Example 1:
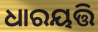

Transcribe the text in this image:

ଧାରୟତ୍ତି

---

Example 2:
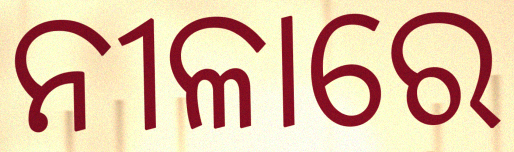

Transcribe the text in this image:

ନୀଳାରେ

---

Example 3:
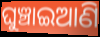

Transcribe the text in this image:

ଘୁଞ୍ଚାଇଆଣି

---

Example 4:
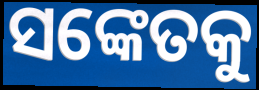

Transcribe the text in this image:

ସଙ୍କେତକୁ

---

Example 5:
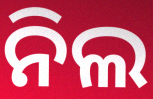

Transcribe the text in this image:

ନିଲ